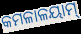
କମଳାଳୟାମ୍